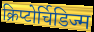
क्रिप्टोर्चिडिज्म